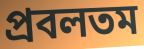
প্রবলতম